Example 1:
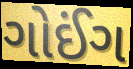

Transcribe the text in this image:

ગોઈંગ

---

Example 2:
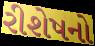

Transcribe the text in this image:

રીશેષનો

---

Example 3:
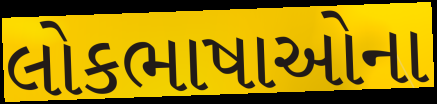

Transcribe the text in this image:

લોકભાષાઓના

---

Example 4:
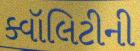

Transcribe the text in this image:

ક્વૉલિટીની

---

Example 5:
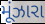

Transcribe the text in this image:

મૂંઝારા